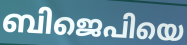
ബിജെപിയെ